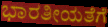
ಭಾರತೀಯತೆಗೆ